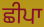
ਛੀਪਾ